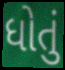
ધોતું